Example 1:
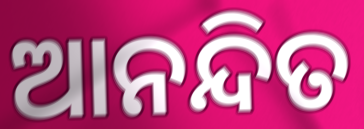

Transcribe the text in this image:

ଆନନ୍ଦିତ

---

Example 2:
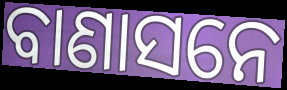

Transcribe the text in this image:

ବାଣାସନେ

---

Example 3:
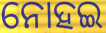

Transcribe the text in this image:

ନୋହଇ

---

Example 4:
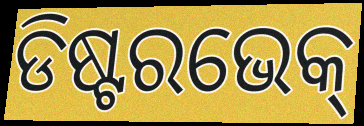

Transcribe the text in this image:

ଡିଷ୍ଟରଭେକ୍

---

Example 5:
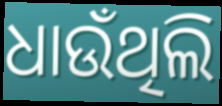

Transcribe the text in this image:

ଧାଉଁଥିଲି